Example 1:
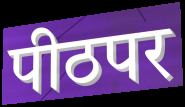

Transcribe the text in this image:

पीठपर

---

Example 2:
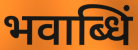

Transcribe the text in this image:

भवाब्धिं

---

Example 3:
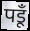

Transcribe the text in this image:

पडूँ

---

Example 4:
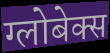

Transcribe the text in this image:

ग्लोबेक्स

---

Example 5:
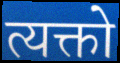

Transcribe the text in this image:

त्यक्तो